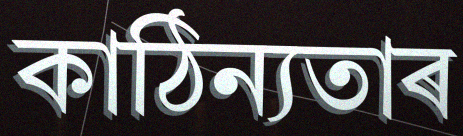
কাঠিন্যতাৰ